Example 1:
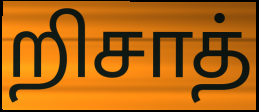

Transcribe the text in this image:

றிசாத்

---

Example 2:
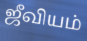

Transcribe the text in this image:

ஜீவியம்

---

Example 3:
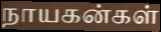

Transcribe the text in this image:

நாயகன்கள்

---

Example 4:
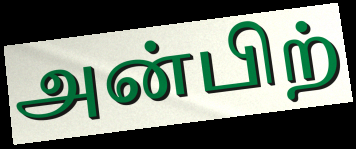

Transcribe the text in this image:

அன்பிற்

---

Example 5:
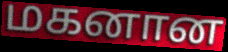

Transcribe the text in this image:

மகனான